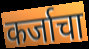
कर्जाचा